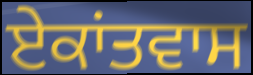
ਏਕਾਂਤਵਾਸ